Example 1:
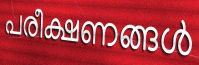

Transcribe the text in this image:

പരീക്ഷണങ്ങൾ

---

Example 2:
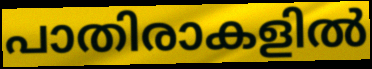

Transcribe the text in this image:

പാതിരാകളിൽ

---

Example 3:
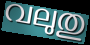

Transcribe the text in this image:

വലുതു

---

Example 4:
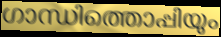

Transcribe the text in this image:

ഗാന്ധിത്തൊപ്പിയും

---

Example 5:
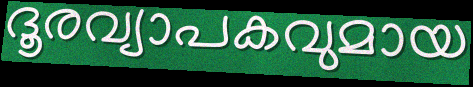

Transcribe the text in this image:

ദൂരവ്യാപകവുമായ